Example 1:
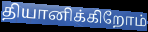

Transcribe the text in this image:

தியானிக்கிறோம்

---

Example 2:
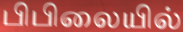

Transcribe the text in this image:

பிபிலையில்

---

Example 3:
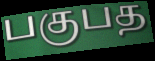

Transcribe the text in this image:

பகுபத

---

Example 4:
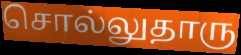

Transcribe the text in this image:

சொல்லுதாரு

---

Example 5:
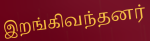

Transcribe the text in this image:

இறங்கிவந்தனர்